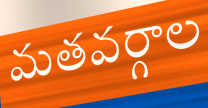
మతవర్గాల